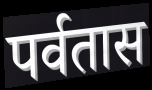
पर्वतास